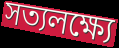
সত্যলক্ষ্যে